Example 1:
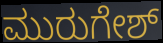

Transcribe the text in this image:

ಮುರುಗೇಶ್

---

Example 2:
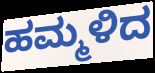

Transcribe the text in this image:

ಹಮ್ಮಳಿದ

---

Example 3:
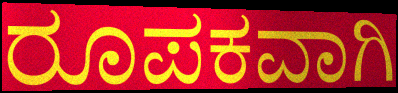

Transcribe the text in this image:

ರೂಪಕವಾಗಿ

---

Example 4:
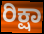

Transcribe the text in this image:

ರಿಕ್ಷಾ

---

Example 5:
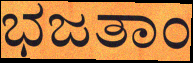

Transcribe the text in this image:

ಭಜತಾಂ